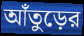
আঁতুড়ের